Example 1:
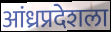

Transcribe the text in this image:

आंध्रप्रदेशला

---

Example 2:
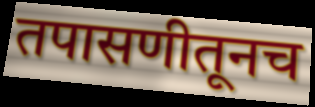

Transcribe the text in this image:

तपासणीतूनच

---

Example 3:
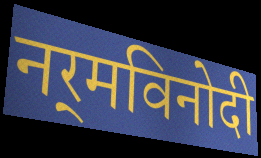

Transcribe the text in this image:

नर्मविनोदी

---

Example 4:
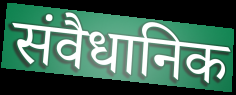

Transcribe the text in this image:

संवैधानिक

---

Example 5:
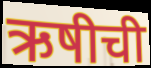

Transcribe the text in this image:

ऋषीची